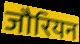
जौरियन